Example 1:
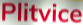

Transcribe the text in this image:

Plitvice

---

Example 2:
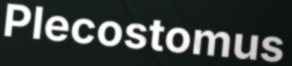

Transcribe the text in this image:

Plecostomus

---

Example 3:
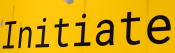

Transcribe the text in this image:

Initiate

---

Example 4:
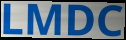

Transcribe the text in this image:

LMDC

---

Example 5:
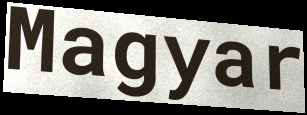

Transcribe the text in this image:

Magyar